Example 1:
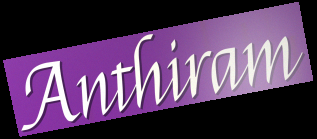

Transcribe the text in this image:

Anthiram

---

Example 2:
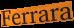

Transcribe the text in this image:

Ferrara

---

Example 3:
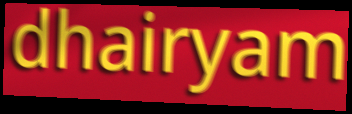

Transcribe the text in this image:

dhairyam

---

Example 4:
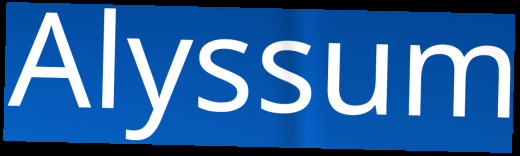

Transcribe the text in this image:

Alyssum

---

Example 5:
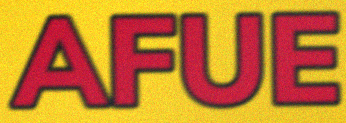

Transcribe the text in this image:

AFUE